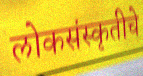
लोकसंस्कृतीचे